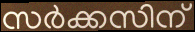
സർക്കസിന്